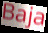
Baja